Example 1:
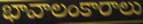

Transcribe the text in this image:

భావాలంకారాలు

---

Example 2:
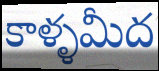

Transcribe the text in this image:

కాళ్ళమీద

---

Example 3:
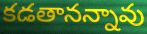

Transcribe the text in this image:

కడతానన్నావు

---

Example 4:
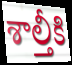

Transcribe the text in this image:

శాల్తీకి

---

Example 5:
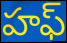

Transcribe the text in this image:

హఫ్